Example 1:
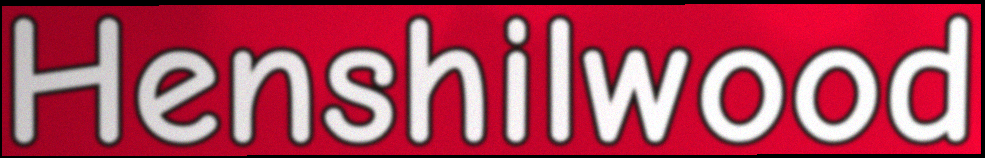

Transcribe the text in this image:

Henshilwood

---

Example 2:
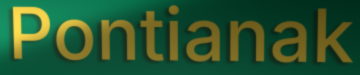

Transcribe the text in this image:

Pontianak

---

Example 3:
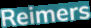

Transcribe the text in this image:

Reimers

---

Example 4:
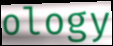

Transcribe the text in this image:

ology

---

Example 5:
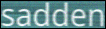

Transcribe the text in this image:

sadden